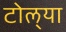
टोल्या